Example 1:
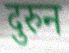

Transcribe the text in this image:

दुरुन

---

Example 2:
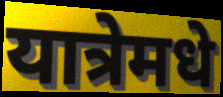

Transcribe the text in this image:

यात्रेमधे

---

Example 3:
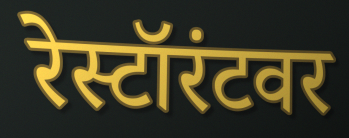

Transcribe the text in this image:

रेस्टॉरंटवर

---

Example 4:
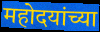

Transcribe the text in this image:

महोदयांच्या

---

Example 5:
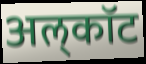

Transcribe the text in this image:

अल्कॉट